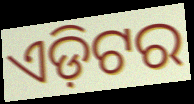
ଏଡ଼ିଟର